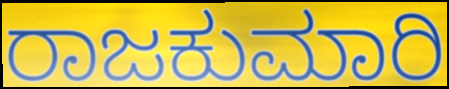
ರಾಜಕುಮಾರಿ